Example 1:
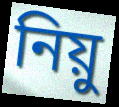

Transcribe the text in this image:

নিয়ু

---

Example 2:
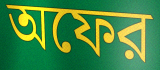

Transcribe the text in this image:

অফের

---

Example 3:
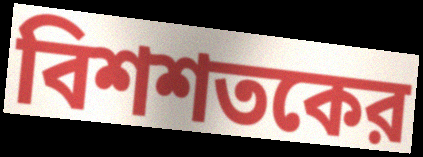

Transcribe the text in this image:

বিশশতকের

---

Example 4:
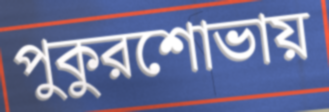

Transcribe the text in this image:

পুকুরশোভায়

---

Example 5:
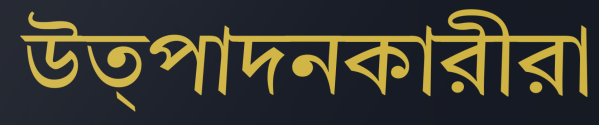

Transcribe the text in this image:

উত্পাদনকারীরা